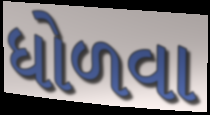
ધોળવા